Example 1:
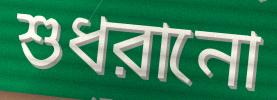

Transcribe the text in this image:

শুধরানো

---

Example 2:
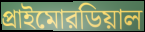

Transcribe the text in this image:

প্রাইমোরডিয়াল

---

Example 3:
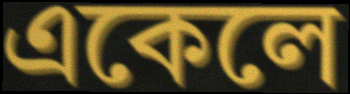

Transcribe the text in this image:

একেলে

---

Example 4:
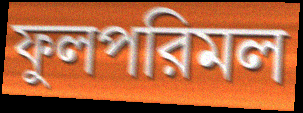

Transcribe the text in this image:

ফুলপরিমল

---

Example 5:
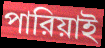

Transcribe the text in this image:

পারিয়াই